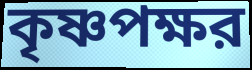
কৃষ্ণপক্ষর